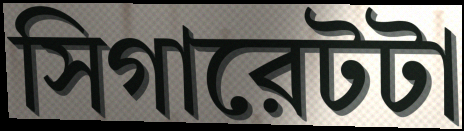
সিগারেটটা